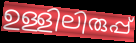
ഉള്ളിലിരുപ്പ്